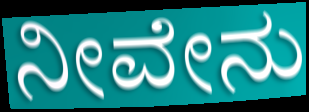
ನೀವೇನು